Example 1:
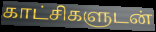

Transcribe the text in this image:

காட்சிகளுடன்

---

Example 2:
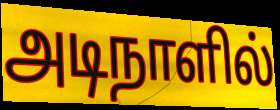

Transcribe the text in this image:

அடிநாளில்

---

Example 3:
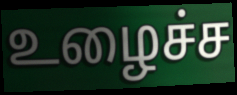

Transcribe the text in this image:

உழைச்ச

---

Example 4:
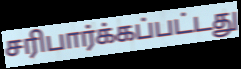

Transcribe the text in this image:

சரிபார்க்கப்பட்டது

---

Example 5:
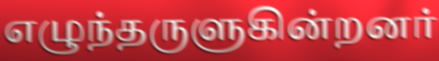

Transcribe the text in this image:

எழுந்தருளுகின்றனர்